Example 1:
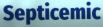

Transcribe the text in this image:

Septicemic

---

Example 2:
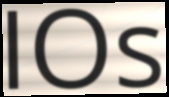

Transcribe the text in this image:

IOs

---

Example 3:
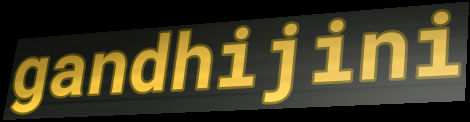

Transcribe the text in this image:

gandhijini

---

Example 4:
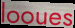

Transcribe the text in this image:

looues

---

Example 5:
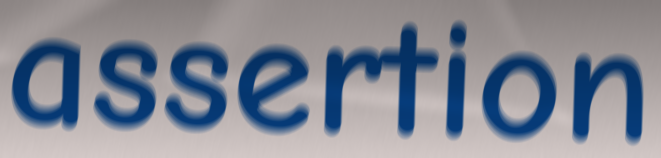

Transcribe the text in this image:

assertion